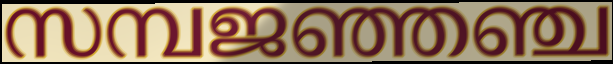
സമ്പജഞ്ഞഞ്ച